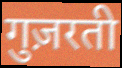
गुज़रती